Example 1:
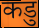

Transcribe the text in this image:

कडु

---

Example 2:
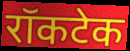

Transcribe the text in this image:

रॉकटेक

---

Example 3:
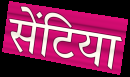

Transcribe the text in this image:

सेंटिया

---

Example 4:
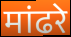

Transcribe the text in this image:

मांढरे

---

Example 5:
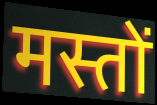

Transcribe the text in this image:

मस्तों